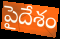
పైదేశం